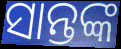
ସାନ୍ତଙ୍କ